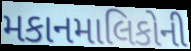
મકાનમાલિકોની